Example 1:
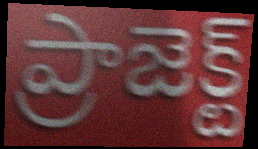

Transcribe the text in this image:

ప్రాజెక్ట్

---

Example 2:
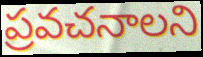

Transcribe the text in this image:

ప్రవచనాలని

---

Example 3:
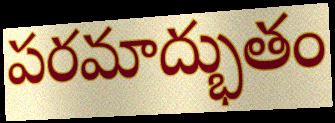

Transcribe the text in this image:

పరమాద్భుతం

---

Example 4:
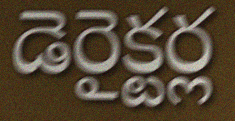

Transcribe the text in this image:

డెరైక్టర్ల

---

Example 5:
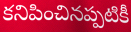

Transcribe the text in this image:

కనిపించినప్పటికీ